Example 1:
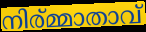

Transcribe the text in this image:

നിര്മ്മാതാവ്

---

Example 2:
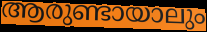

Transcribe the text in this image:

ആരുണ്ടായാലും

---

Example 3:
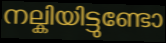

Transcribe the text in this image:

നല്കിയിട്ടുണ്ടോ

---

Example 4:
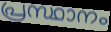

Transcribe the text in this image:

പ്രസ്ഥാനം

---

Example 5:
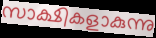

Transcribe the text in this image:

സാക്ഷികളാകുന്നു